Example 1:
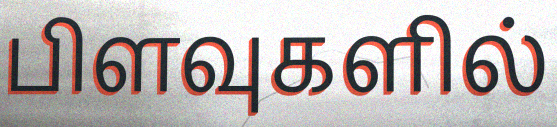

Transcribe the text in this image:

பிளவுகளில்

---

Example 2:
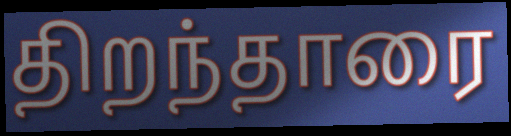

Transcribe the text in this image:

திறந்தாரை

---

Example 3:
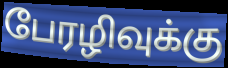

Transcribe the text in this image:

பேரழிவுக்கு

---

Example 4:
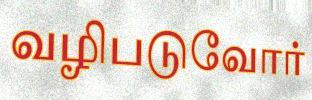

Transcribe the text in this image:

வழிபடுவோர்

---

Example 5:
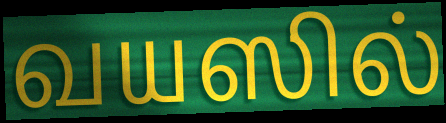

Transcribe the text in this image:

வயஸில்